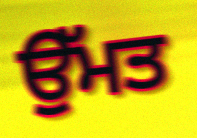
ਉੱਮਤ